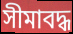
সীমাবদ্ধ